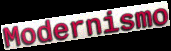
Modernismo